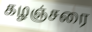
கழஞ்சரை